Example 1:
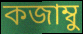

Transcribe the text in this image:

কজাম্বু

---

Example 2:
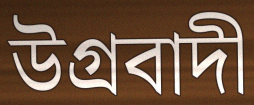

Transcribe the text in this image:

উগ্ৰবাদী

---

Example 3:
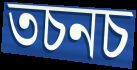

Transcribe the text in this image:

তচনচ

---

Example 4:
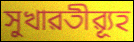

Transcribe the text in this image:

সুখাৱতীৱ্যূহ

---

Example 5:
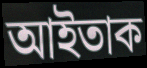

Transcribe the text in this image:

আইতাক